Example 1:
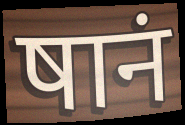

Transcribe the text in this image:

षानं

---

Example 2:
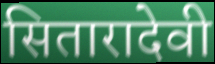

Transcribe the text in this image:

सितारादेवी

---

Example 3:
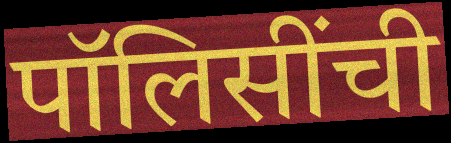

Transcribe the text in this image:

पॉलिसींची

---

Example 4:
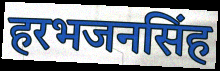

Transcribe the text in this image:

हरभजनसिंह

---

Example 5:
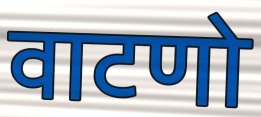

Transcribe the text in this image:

वाटणो